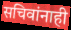
सचिवांनाही